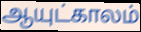
ஆயுட்காலம்